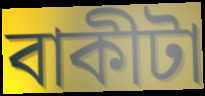
বাকীটা